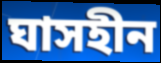
ঘাসহীন